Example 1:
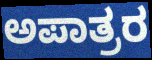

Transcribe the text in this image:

ಅಪಾತ್ರರ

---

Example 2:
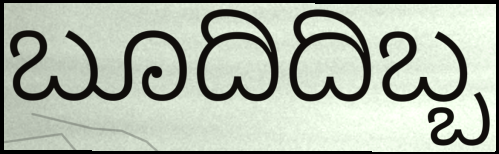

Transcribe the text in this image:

ಬೂದಿದಿಬ್ಬ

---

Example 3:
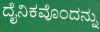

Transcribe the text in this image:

ದೈನಿಕವೊಂದನ್ನು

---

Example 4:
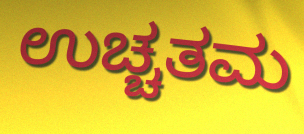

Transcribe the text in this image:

ಉಚ್ಚತಮ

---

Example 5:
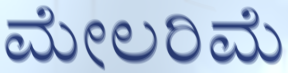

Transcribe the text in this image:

ಮೇಲರಿಮೆ